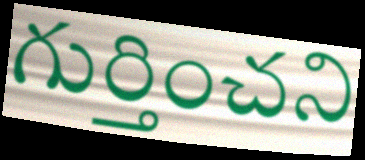
గుర్తించని